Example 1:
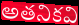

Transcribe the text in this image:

అతనికవి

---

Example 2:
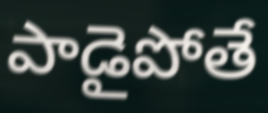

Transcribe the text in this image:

పాడైపోతే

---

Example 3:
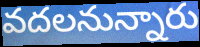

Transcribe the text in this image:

వదలనున్నారు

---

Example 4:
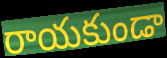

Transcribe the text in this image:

రాయకుండా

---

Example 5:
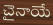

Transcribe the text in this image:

చైనాయే